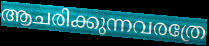
ആചരിക്കുന്നവരത്രേ